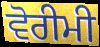
ਵੋਰੀਮੀ